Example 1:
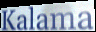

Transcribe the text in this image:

Kalama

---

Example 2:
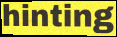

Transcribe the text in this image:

hinting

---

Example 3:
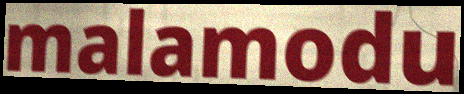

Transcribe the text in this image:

malamodu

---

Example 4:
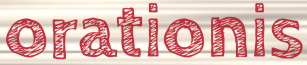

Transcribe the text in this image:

orationis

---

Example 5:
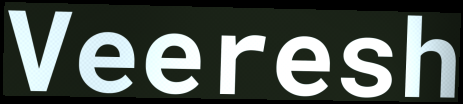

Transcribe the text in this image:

Veeresh